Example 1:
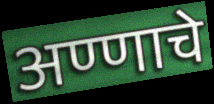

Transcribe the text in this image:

अण्णाचे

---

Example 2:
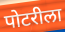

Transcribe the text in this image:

पोटरीला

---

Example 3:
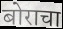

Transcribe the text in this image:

बोराचा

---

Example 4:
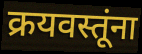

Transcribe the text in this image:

क्रयवस्तूंना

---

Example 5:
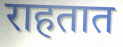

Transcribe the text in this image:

राहतात